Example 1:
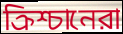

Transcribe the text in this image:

ক্রিশ্চানেরা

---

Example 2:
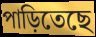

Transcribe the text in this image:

পাড়িতেছে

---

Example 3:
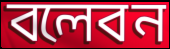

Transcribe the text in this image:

বলেবন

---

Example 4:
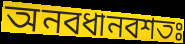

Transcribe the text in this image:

অনবধানবশতঃ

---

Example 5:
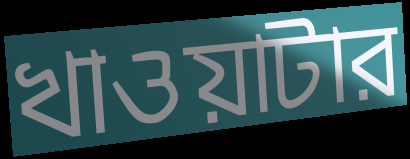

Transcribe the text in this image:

খাওয়াটার